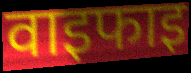
वाइफाइ